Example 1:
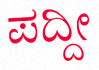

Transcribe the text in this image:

ಪದ್ದೀ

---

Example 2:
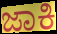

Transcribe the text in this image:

ಜಾಕಿ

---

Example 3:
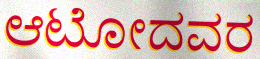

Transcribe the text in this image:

ಆಟೋದವರ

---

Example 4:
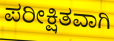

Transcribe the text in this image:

ಪರೀಕ್ಷಿತವಾಗಿ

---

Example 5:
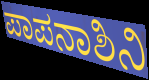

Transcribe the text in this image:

ಪಾಪನಾಶಿನಿ